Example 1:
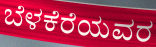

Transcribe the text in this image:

ಬೆಳಕೆರೆಯವರ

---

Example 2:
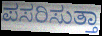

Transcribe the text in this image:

ಪಸರಿಸುತ್ತಾ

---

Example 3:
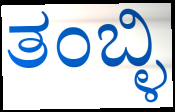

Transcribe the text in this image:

ತಂಬ್ಳಿ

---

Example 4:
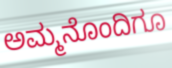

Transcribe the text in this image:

ಅಮ್ಮನೊಂದಿಗೂ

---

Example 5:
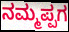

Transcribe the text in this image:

ನಮ್ಮಪ್ಪಗ